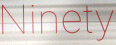
Ninety